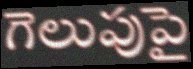
గెలుపుపై